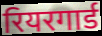
रियरगार्ड